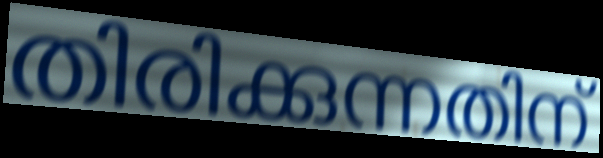
തിരിക്കുന്നതിന്